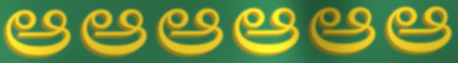
ఆఆఆఆఆఆ